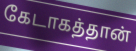
கேடாகத்தான்